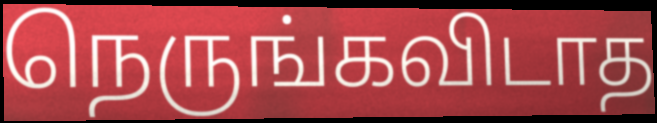
நெருங்கவிடாத